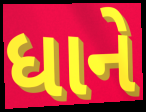
ધાને